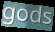
gods